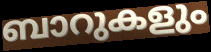
ബാറുകളും